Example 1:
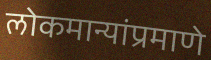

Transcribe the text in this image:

लोकमान्यांप्रमाणे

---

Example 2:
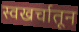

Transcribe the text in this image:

स्वखर्चातून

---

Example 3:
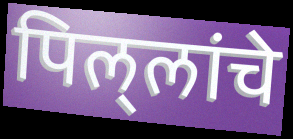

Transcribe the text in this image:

पिल्लांचे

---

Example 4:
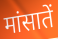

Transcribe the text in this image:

मांसातें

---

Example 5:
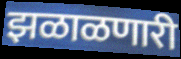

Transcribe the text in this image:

झळाळणारी